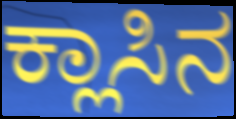
ಕ್ಲಾಸಿನ